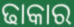
ଢାକାର